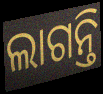
ଲାଗନ୍ତି